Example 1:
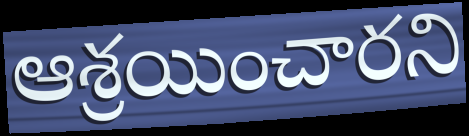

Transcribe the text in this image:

ఆశ్రయించారని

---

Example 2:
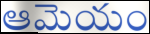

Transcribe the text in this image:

ఆమెయం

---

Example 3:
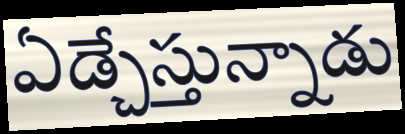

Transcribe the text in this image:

ఏడ్చేస్తున్నాడు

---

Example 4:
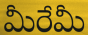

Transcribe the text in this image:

మీరేమీ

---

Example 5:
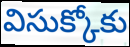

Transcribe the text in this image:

విసుక్కోకు